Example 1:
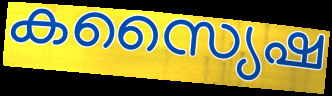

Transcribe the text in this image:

കസ്യൈഷ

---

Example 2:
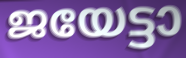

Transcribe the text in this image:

ജയേട്ടാ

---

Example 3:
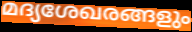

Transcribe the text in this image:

മദ്യശേഖരങ്ങളും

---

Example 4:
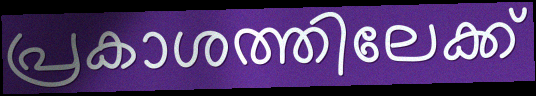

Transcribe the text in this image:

പ്രകാശത്തിലേക്ക്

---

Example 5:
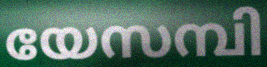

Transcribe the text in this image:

യേസമ്പി